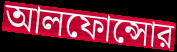
আলফোন্সোর